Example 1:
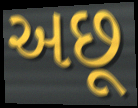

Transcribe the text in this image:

અછૂ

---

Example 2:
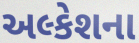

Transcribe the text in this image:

અલ્કેશના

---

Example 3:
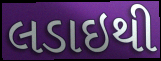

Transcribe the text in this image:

લડાઇથી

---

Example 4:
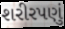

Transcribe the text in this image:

શરીરપણું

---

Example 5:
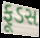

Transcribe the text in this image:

ફૂડસ